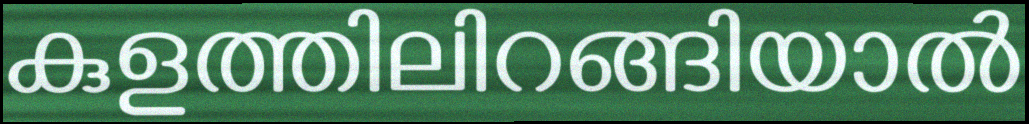
കുളത്തിലിറങ്ങിയാൽ